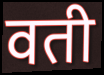
वती